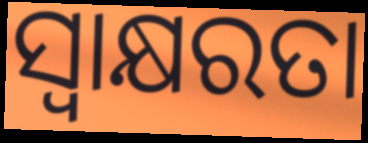
ସ୍ବାକ୍ଷରତା